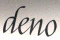
deno